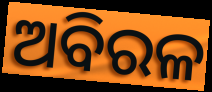
ଅବିରଳ